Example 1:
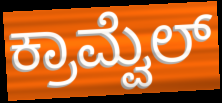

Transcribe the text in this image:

ಕ್ರಾಮ್ವೆಲ್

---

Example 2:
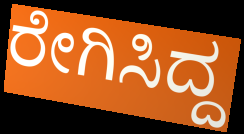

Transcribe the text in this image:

ರೇಗಿಸಿದ್ದ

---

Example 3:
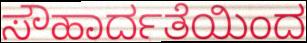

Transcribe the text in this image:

ಸೌಹಾರ್ದತೆಯಿಂದ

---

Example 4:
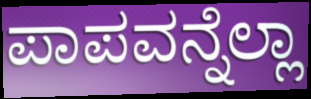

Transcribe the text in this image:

ಪಾಪವನ್ನೆಲ್ಲಾ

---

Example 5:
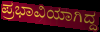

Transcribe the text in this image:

ಪ್ರಭಾವಿಯಾಗಿದ್ದ